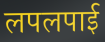
लपलपाई